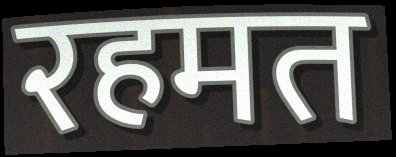
रहमत